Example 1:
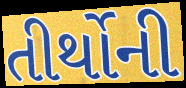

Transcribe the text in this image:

તીર્થોની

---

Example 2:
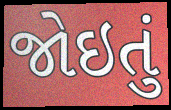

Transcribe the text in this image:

જોઇતું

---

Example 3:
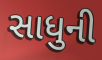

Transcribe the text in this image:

સાધુની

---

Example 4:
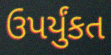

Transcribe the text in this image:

ઉપર્યુંકત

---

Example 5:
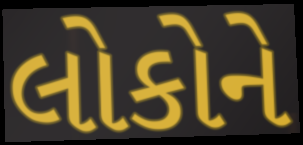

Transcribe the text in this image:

લોકોને